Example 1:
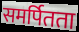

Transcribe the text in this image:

समर्पितता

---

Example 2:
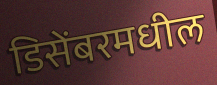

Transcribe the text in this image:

डिसेंबरमधील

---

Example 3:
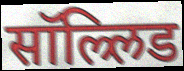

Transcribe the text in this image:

सॉल्लिड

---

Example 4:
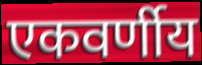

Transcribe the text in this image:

एकवर्णीय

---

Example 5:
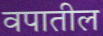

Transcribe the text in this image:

वपातील